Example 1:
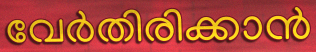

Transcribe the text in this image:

വേർതിരിക്കാൻ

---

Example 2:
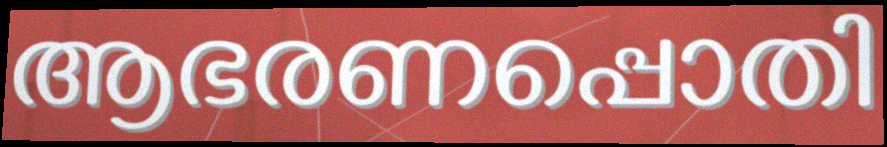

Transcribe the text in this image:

ആഭരണപ്പൊതി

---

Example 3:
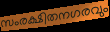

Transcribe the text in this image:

സംരക്ഷിതനഗരവും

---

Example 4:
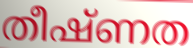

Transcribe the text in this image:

തീഷ്ണത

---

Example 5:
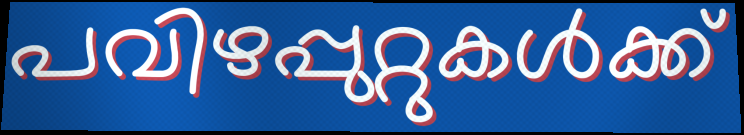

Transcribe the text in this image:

പവിഴപ്പുറ്റുകൾക്ക്